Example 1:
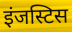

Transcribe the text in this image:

इंजस्टिस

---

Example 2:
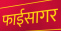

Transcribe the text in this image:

फाईसागर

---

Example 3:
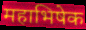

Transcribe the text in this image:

महाभिषेक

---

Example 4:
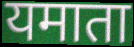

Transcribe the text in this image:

यमाता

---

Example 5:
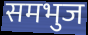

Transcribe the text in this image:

समभुज